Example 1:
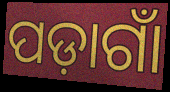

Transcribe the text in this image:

ପଡ଼ାଗାଁ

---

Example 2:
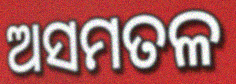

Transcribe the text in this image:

ଅସମତଳ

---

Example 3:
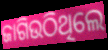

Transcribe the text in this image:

ଜାଗିଉଠିଥିଲେ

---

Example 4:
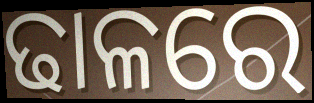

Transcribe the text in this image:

ଢାଳରେ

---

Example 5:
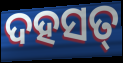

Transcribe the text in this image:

ଦହସତ୍